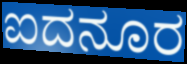
ಐದನೂರ